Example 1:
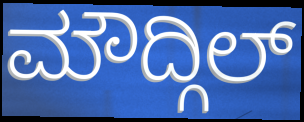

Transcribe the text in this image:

ಮೌದ್ಗಿಲ್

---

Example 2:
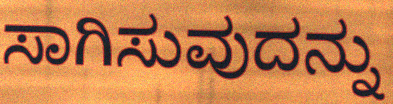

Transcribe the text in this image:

ಸಾಗಿಸುವುದನ್ನು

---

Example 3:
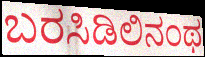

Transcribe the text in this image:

ಬರಸಿಡಿಲಿನಂಥ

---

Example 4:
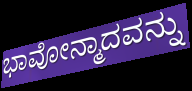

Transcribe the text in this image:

ಭಾವೋನ್ಮಾದವನ್ನು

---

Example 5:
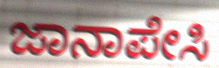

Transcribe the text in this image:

ಜಾನಾಪೇಸಿ